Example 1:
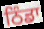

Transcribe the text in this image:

ਠਿੰਡਾ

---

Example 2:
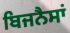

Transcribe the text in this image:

ਬਿਜਨੈਸਾਂ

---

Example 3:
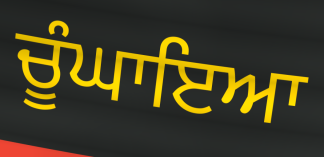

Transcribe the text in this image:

ਚੂੰਘਾਇਆ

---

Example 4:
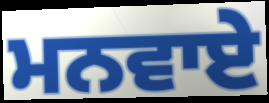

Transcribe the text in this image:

ਮਨਵਾਏ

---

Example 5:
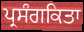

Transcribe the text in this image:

ਪ੍ਰਸੰਗਕਿਤਾ